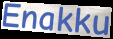
Enakku